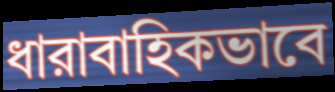
ধারাবাহিকভাবে